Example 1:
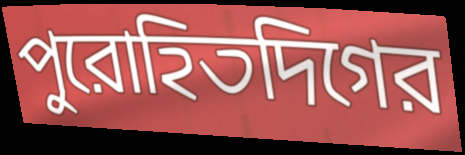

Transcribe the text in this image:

পুরোহিতদিগের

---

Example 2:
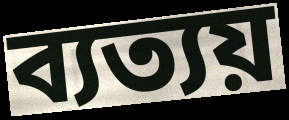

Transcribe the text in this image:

ব্যত্যয়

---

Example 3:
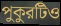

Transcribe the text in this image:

পুকুরটিও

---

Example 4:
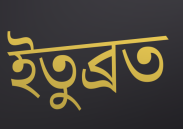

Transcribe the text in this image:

ইতুব্রত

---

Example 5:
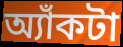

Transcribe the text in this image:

অ্যাঁকটা